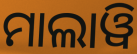
ମାଲାୱି